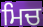
ਮਿਚ